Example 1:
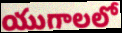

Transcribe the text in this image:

యుగాలలో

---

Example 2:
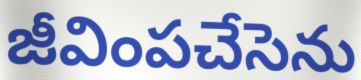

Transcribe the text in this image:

జీవింపచేసెను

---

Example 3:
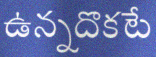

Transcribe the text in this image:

ఉన్నదొకటే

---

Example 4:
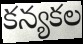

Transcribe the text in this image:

కన్యకల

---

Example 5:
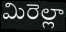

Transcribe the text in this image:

మిరెల్లా